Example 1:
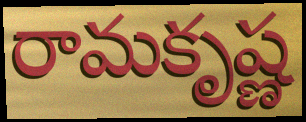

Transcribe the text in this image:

రామకృష్ణ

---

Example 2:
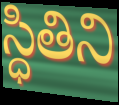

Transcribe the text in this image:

స్ధితిని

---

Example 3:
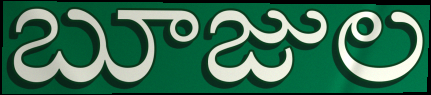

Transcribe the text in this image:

బూజుల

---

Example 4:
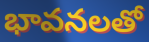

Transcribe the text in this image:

భావనలతో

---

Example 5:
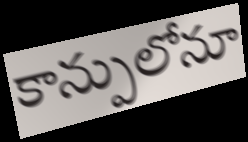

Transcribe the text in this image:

కాన్పులోనూ